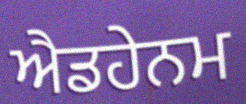
ਐਡਹੇਨਮ